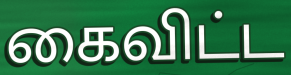
கைவிட்ட